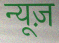
न्यूज़